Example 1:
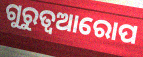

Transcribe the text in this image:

ଗୁରୁତ୍ଵଆରୋପ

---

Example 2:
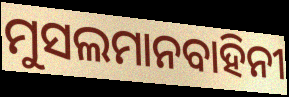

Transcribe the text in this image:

ମୁସଲମାନବାହିନୀ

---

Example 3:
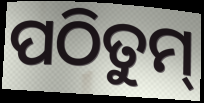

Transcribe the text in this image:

ପଠିତୁମ୍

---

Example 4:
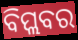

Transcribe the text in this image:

ବିପ୍ଲବର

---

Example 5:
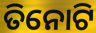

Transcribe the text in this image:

ତିନୋଟି